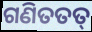
ଗଣିତତତ୍